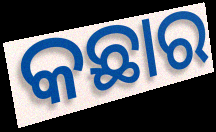
କଛାର